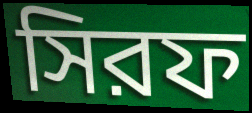
সিরফ